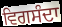
ਵਿਗਸੰਦਾ